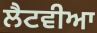
ਲੈਟਵੀਆ